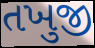
તખુજી